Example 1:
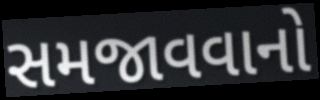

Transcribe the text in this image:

સમજાવવાનો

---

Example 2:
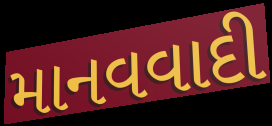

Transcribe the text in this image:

માનવવાદી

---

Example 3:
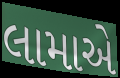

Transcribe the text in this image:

લામાએ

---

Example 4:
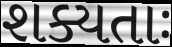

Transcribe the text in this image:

શક્યતાઃ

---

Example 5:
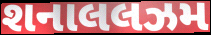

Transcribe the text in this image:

શનાલલઝમ